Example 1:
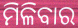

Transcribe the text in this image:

ମିଳିବାର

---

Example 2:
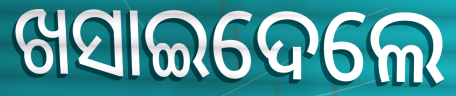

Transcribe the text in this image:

ଖସାଇଦେଲେ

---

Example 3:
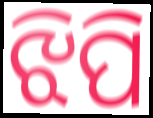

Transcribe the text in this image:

ଝିପି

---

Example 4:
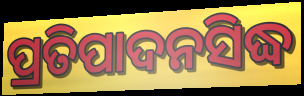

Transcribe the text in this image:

ପ୍ରତିପାଦନସିଦ୍ଧ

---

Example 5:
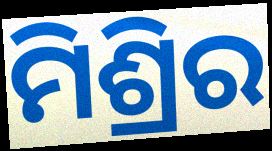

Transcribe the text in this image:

ମିଶ୍ରିର